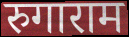
रुगाराम